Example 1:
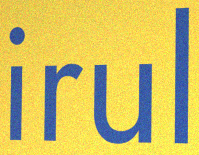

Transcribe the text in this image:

irul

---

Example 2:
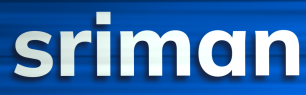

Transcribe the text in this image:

sriman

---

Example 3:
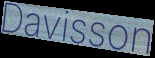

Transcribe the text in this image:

Davisson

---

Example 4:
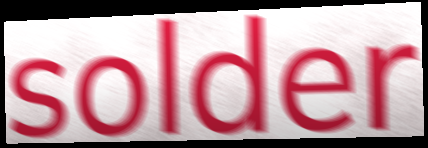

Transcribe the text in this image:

solder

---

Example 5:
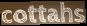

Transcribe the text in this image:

cottahs